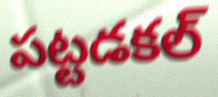
పట్టడకల్